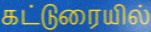
கட்டுரையில்